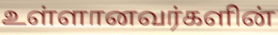
உள்ளானவர்களின்